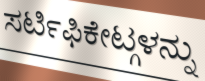
ಸರ್ಟಿಫಿಕೇಟ್ಗಳನ್ನು